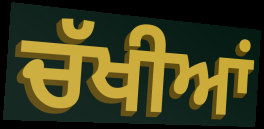
ਚੱਖੀਆਂ